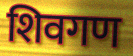
शिवगण